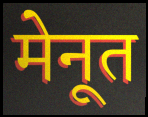
मेनूत